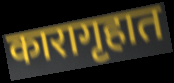
कारागृहात